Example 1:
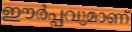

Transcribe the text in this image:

ഈർപ്പവുമാണ്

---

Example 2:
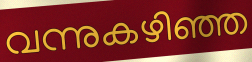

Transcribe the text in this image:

വന്നുകഴിഞ്ഞ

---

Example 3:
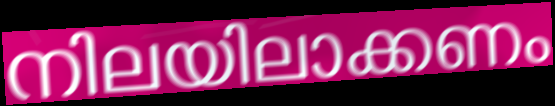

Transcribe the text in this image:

നിലയിലാക്കണം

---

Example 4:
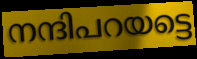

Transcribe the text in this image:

നന്ദിപറയട്ടെ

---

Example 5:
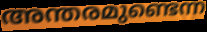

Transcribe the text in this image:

അന്തരമുണ്ടെന്ന